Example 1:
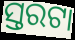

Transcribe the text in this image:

ସ୍ତରଟା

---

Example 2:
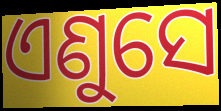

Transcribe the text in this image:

ଏଣୁସେ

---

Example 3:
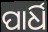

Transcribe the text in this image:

ପାର୍ଧି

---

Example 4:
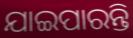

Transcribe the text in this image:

ଯାଇପାରନ୍ତି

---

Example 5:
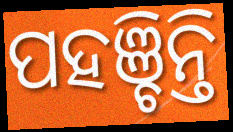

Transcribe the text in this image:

ପହଞ୍ଚିନ୍ତି